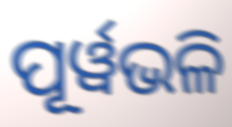
ପୂର୍ୱଭଳି